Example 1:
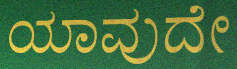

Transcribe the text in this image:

ಯಾವುದೇ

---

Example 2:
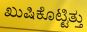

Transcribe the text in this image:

ಖುಷಿಕೊಟ್ಟಿತ್ತು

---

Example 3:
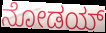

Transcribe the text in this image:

ನೋಡಯ್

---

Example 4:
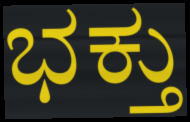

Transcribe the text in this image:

ಭಕ್ತು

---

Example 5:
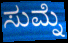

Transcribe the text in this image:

ಸುಮ್ನೆ